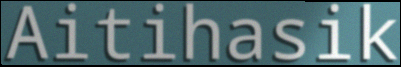
Aitihasik